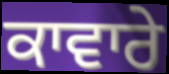
ਕਾਵਾਰੇ